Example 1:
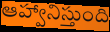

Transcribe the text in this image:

ఆహ్వానిస్తుంది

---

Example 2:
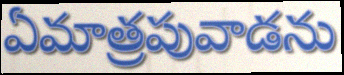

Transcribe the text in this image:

ఏమాత్రపువాడను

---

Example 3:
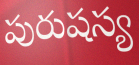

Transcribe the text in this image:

పురుషస్య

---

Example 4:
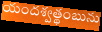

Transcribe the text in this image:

యందశ్వత్థంబును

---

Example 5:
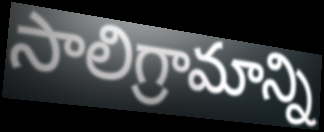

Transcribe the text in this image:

సాలిగ్రామాన్ని